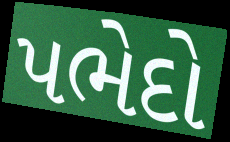
પભેદો